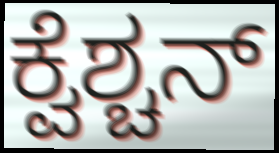
ಕ್ವೆಶ್ಚನ್